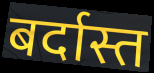
बर्दास्त